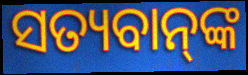
ସତ୍ୟବାନ୍‌ଙ୍କ